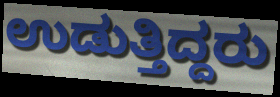
ಉಡುತ್ತಿದ್ದರು